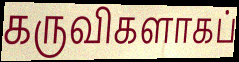
கருவிகளாகப்